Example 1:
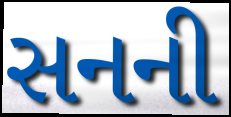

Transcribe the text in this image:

સનની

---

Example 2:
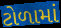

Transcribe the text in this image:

ટોળામાં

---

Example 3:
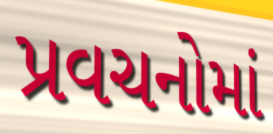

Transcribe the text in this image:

પ્રવચનોમાં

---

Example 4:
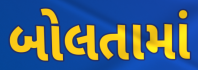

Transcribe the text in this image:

બોલતામાં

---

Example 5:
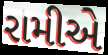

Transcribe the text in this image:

રામીએ